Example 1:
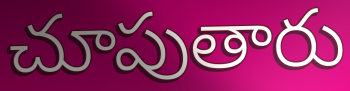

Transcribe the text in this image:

చూపుతారు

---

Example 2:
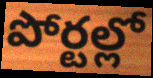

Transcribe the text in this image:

పోర్టల్లో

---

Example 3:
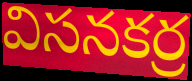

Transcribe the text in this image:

విసనకర్ర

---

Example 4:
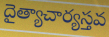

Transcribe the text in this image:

దైత్యాచార్యస్తవ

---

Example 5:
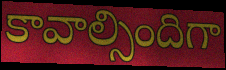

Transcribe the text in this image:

కావాల్సిందిగా